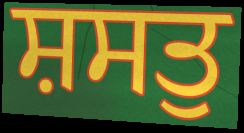
ਸ਼ਸਤੁ